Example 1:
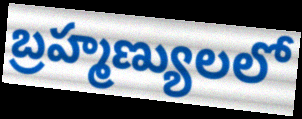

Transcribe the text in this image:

బ్రహ్మణ్యులలో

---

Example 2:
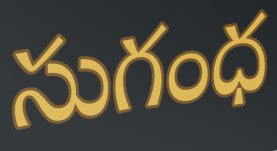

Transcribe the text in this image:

సుగంధ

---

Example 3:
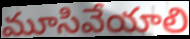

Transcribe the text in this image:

మూసివేయాలి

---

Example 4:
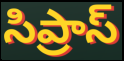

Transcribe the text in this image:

సిప్రాస్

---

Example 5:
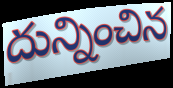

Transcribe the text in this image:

దున్నించిన